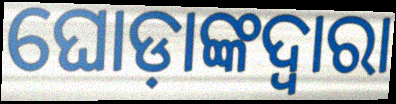
ଘୋଡ଼ାଙ୍କଦ୍ୱାରା